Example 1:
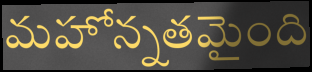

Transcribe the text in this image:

మహోన్నతమైంది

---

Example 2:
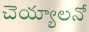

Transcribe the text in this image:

చెయ్యాలనో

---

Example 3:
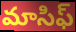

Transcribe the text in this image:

మాసిఫ్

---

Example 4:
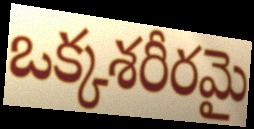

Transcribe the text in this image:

ఒక్కశరీరమై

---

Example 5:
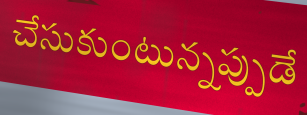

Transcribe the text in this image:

చేసుకుంటున్నప్పుడే